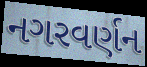
નગરવર્ણન